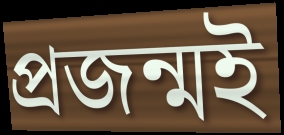
প্ৰজন্মই